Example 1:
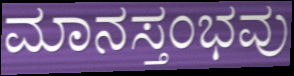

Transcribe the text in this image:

ಮಾನಸ್ತಂಭವು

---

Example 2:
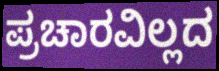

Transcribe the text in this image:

ಪ್ರಚಾರವಿಲ್ಲದ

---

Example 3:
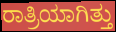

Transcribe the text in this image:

ರಾತ್ರಿಯಾಗಿತ್ತು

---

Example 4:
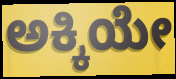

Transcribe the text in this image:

ಅಕ್ಕಿಯೇ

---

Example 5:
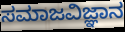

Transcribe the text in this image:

ಸಮಾಜವಿಜ್ಞಾನ